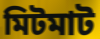
মিটমাট